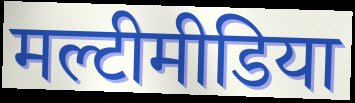
मल्टीमीडिया